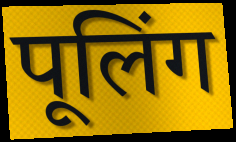
पूलिंग